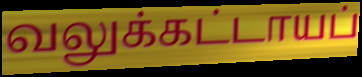
வலுக்கட்டாயப்